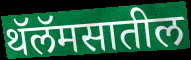
थॅलॅमसातील